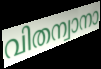
വിതന്വാനാ